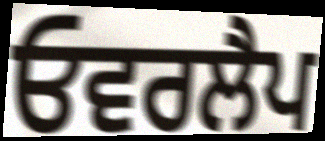
ਓਵਰਲੈਪ